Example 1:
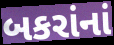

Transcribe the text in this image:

બકરાંનાં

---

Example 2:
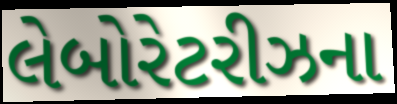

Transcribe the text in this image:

લેબોરેટરીઝના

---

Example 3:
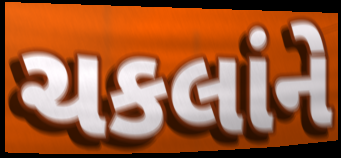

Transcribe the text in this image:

ચકલાંને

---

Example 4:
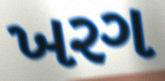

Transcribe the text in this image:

ખરગ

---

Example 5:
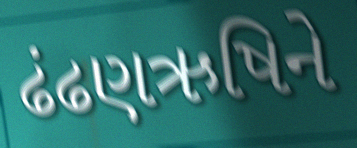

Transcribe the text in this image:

ઢંઢણઋષિને